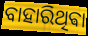
ବାହାରିଥିଵା